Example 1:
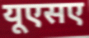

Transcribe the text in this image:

यूएसए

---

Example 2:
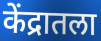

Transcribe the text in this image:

केंद्रातला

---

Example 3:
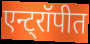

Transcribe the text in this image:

एन्ट्रॉपीत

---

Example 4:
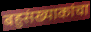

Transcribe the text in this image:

बहुसंख्याकांचा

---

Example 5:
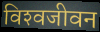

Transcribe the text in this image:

विश्वजीवन